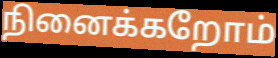
நினைக்கறோம்